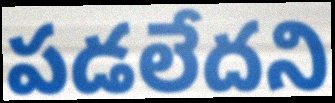
పడలేదని